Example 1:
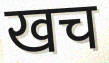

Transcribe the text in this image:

खच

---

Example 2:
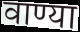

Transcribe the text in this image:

वाण्या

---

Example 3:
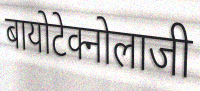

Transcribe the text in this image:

बायोटेक्नोलाजी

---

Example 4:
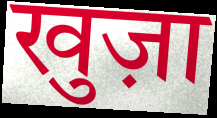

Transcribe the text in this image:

खुज़ा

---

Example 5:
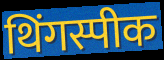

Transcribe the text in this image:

थिंगस्पीक